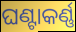
ଘଣ୍ଟାକର୍ଣ୍ଣ